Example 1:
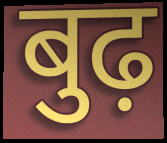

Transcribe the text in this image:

बुढ़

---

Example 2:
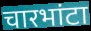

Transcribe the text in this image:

चारभांटा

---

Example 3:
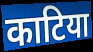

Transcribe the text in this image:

काटिया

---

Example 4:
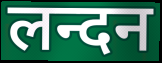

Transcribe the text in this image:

लन्दन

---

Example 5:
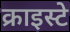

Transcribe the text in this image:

क्राइस्टे